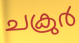
ചക്രുർ